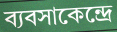
ব্যবসাকেন্দ্রে